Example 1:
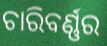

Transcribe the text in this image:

ଚାରିବର୍ଣ୍ଣର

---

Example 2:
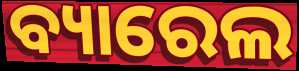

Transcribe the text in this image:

ବ୍ୟାରେଲ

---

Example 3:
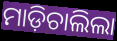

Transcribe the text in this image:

ମାଡ଼ିଚାଲିଲା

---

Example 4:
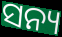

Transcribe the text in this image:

ସନ୍ୟ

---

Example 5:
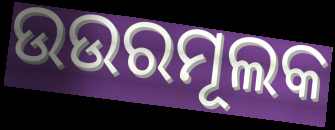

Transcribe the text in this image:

ଉଉରମୂଲକ